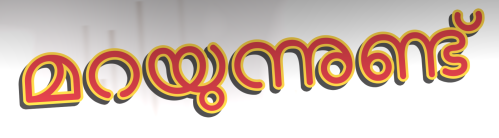
മറയുന്നുണ്ട്